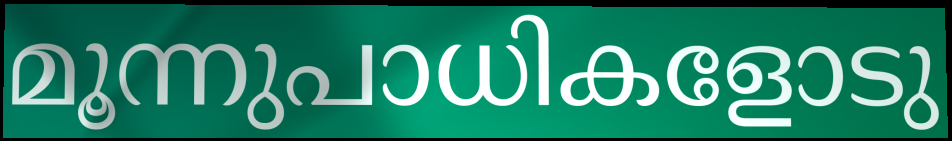
മൂന്നുപാധികളോടു